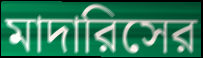
মাদারিসের